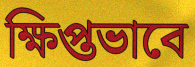
ক্ষিপ্তভাবে